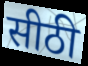
सीठी